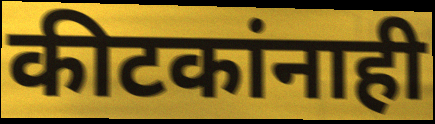
कीटकांनाही